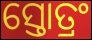
ସ୍ତୋତ୍ରଂ